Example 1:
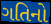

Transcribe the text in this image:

ગતિનો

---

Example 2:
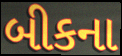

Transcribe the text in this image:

બીકના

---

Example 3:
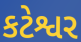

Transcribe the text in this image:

કટેશ્વર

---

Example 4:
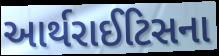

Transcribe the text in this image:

આર્થરાઈટિસના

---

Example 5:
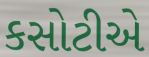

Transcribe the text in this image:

કસોટીએ